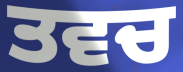
ਤਵਚ